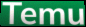
Temu